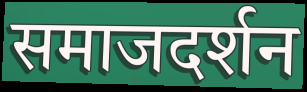
समाजदर्शन